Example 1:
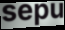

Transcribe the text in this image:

sepu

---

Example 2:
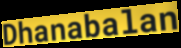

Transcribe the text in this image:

Dhanabalan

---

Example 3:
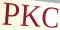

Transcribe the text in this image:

PKC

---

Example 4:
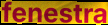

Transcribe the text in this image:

fenestra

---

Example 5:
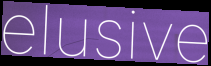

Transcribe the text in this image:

elusive